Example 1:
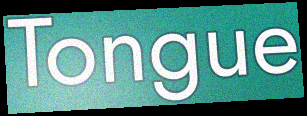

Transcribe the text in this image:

Tongue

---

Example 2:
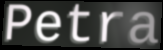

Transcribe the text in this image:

Petra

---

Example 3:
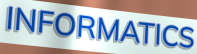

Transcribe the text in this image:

INFORMATICS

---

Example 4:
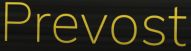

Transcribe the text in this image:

Prevost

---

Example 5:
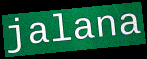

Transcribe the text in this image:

jalana